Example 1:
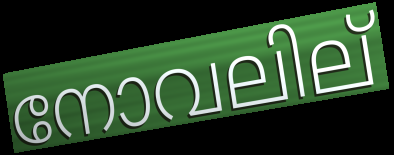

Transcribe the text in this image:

നോവലില്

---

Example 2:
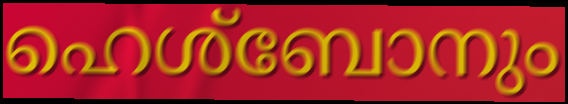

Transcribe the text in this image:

ഹെശ്ബോനും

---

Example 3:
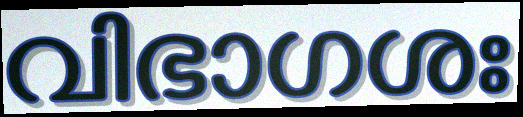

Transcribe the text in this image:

വിഭാഗശഃ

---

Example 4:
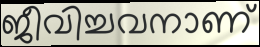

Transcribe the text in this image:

ജീവിച്ചവനാണ്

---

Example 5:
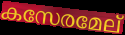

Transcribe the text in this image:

കസേരമേല്